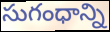
సుగంధాన్ని